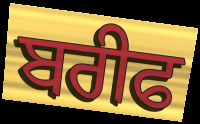
ਬਰੀਫ